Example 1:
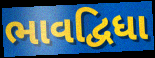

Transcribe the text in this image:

ભાવદ્વિધા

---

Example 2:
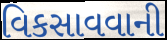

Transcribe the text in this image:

વિકસાવવાની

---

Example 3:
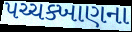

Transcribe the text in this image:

પચ્ચક્ખાણના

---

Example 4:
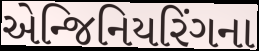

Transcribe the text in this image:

એન્જિનિયરિંગના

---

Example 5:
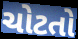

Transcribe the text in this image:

ચોટતો